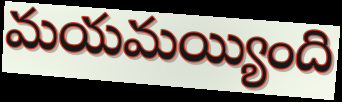
మయమయ్యింది